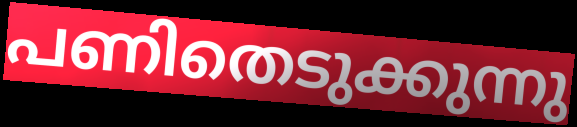
പണിതെടുക്കുന്നു